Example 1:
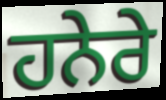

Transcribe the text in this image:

ਹਨੇਰੇ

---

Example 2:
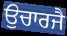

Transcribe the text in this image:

ਉਚਾਰਜੈ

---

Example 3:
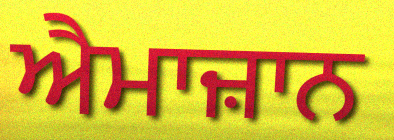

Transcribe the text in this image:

ਐਮਾਜ਼ਾਨ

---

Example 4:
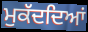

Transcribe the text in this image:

ਮੁਕੱਦਦਿਆਂ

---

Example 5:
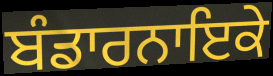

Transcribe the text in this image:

ਬੰਡਾਰਨਾਇਕੇ